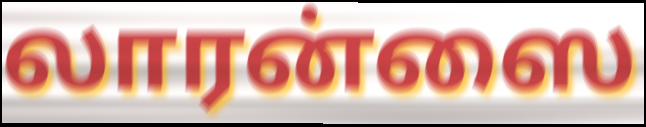
லாரன்ஸை